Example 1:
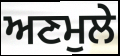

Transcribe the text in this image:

ਅਣਮੁਲੇ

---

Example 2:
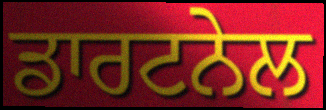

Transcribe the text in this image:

ਡਾਰਟਨੇਲ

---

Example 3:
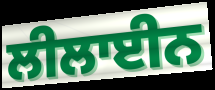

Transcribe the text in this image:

ਲੀਲਾਈਨ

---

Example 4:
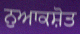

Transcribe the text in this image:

ਨੁਆਕਸ਼ੋਤ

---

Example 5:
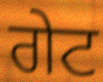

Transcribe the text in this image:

ਗੇਟ